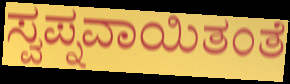
ಸ್ವಪ್ನವಾಯಿತಂತೆ